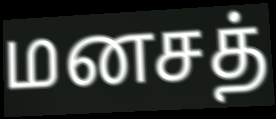
மனசத்